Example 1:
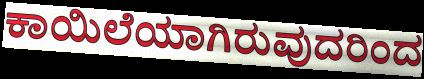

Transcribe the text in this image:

ಕಾಯಿಲೆಯಾಗಿರುವುದರಿಂದ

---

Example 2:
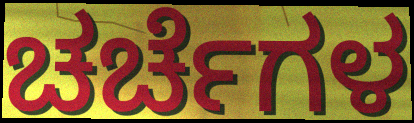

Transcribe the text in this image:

ಚರ್ಚೆಗಳ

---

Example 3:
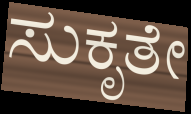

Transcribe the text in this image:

ಸುಕೃತೇ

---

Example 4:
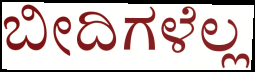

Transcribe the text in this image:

ಬೀದಿಗಳೆಲ್ಲ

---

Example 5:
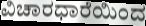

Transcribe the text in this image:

ವಿಚಾರಧಾರೆಯಿಂದ